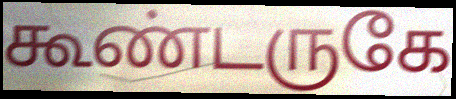
கூண்டருகே